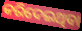
କରିଦେଇଥିବା